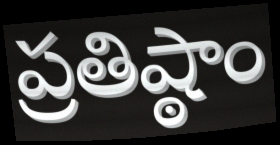
ప్రతిష్ఠాం